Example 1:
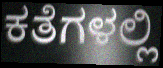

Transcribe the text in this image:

ಕತೆಗಳಲ್ಲಿ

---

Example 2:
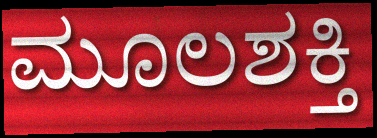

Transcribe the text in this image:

ಮೂಲಶಕ್ತಿ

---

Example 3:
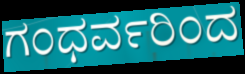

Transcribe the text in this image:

ಗಂಧರ್ವರಿಂದ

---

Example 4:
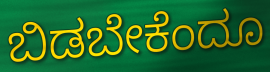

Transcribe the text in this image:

ಬಿಡಬೇಕೆಂದೂ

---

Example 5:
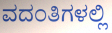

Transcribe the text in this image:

ವದಂತಿಗಳಲ್ಲಿ